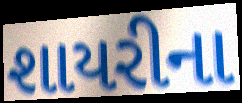
શાયરીના